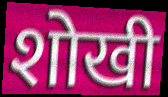
शोखी